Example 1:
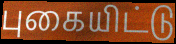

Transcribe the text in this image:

புகையிட்டு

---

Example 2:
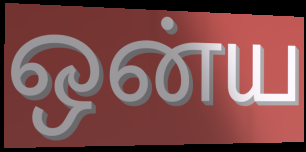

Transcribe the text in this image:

ஒன்ய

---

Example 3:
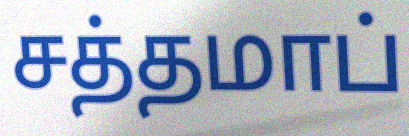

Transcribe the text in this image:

சத்தமாப்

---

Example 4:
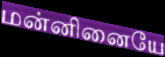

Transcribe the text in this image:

மன்னினையே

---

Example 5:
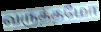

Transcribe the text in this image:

வருத்தமோ